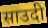
साउदी